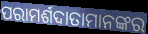
ପରାମର୍ଶଦାତାମାନଙ୍କର